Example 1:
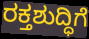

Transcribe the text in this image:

ರಕ್ತಶುದ್ಧಿಗೆ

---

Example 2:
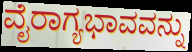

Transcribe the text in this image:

ವೈರಾಗ್ಯಭಾವವನ್ನು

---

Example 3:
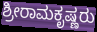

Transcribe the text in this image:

ಶ್ರೀರಾಮಕೃಷ್ಣರು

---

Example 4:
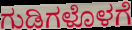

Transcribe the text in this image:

ಗುಡಿಗಳೊಳಗೆ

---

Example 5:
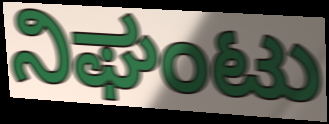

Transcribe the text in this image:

ನಿಘಂಟು